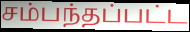
சம்பந்தப்பட்ட